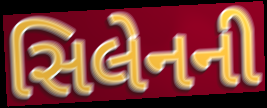
સિલેનની